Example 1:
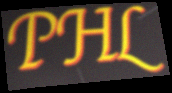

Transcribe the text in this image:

PHL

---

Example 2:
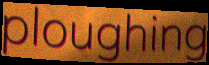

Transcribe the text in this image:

ploughing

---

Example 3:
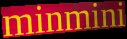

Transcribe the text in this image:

minmini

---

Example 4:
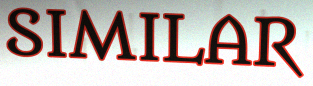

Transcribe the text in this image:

SIMILAR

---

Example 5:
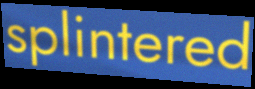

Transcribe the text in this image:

splintered